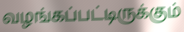
வழங்கப்பட்டிருக்கும்